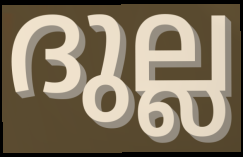
ദുല്ല